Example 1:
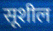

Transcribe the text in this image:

सूशील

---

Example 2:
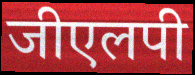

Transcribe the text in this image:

जीएलपी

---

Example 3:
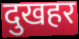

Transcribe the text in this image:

दुखहर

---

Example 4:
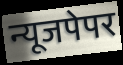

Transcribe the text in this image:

न्यूजपेपर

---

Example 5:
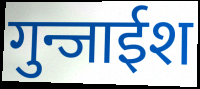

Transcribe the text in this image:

गुन्जाईश